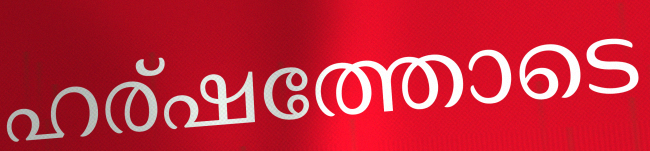
ഹര്ഷത്തോടെ